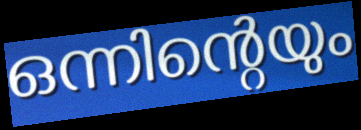
ഒന്നിന്റെയും